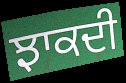
ਝਾਕਦੀ